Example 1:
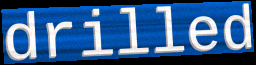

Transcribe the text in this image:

drilled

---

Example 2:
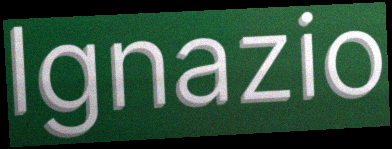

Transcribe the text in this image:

Ignazio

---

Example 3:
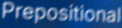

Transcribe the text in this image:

Prepositional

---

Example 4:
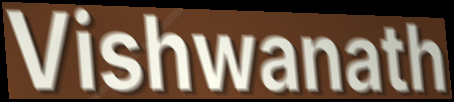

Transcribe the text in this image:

Vishwanath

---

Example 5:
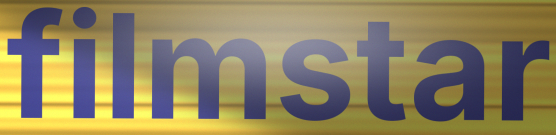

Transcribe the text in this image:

filmstar